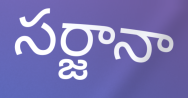
సర్జానా